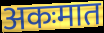
अकःमात